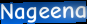
Nageena